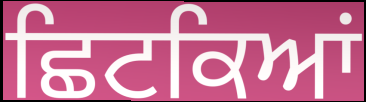
ਛਿਟਕਿਆਂ